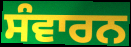
ਸੰਵਾਰਨ